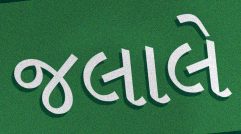
જલાલે